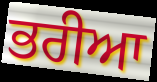
ਭਰੀਆ